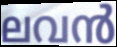
ലവൻ